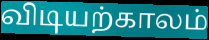
விடியற்காலம்